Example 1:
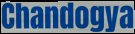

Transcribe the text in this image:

Chandogya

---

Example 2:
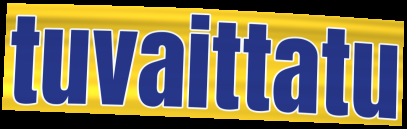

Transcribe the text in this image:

tuvaittatu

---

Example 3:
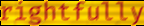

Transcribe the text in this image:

rightfully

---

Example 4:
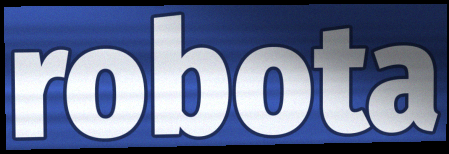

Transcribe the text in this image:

robota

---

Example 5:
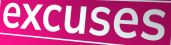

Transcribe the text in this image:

excuses